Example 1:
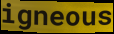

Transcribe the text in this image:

igneous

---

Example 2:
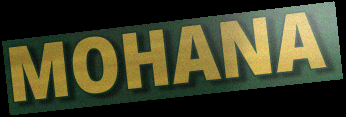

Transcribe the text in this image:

MOHANA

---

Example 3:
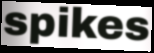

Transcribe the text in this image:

spikes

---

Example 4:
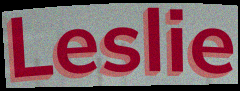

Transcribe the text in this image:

Leslie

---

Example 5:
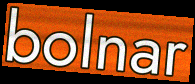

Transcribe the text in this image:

bolnar